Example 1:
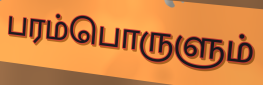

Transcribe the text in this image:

பரம்பொருளும்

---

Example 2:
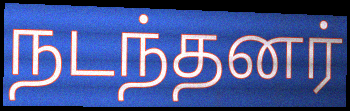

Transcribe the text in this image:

நடந்தனர்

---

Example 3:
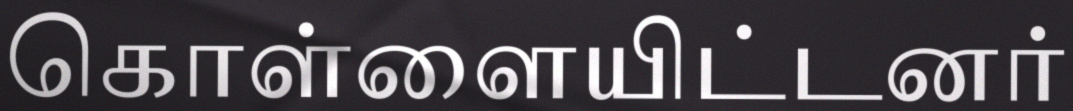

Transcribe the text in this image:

கொள்ளையிட்டனர்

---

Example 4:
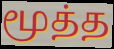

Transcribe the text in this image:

மூத்த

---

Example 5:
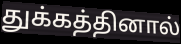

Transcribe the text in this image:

துக்கத்தினால்